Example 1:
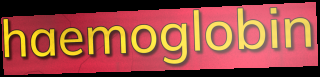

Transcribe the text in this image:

haemoglobin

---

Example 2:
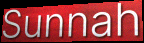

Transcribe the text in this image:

Sunnah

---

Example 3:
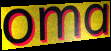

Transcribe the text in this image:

oma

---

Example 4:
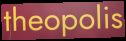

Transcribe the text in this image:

theopolis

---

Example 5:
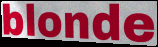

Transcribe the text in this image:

blonde